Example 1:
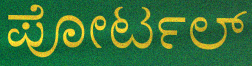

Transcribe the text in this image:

ಪೋರ್ಟಲ್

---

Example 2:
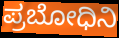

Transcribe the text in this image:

ಪ್ರಬೋಧಿನಿ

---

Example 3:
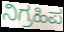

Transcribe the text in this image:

ನಿಗ್ರಹಿಪ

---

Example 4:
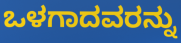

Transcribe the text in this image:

ಒಳಗಾದವರನ್ನು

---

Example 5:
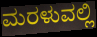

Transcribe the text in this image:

ಮರಳುವಲ್ಲಿ